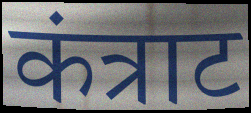
कंत्राट